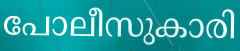
പോലീസുകാരി